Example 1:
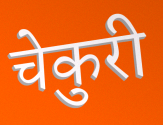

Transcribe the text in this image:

चेकुरी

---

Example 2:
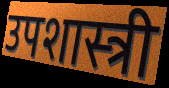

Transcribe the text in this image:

उपशास्त्री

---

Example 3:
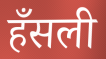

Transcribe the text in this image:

हँसली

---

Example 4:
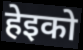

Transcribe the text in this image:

हेइको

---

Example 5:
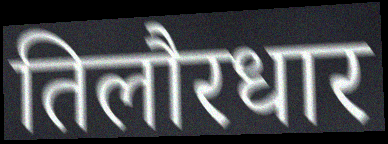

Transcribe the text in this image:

तिलौरधार